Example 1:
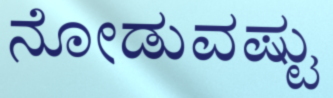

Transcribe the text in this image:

ನೋಡುವಷ್ಟು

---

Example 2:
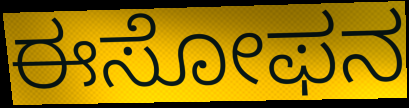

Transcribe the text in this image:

ಈಸೋಫನ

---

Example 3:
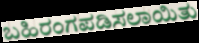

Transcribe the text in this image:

ಬಹಿರಂಗಪಡಿಸಲಾಯಿತು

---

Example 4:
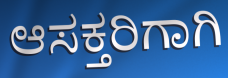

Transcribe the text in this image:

ಆಸಕ್ತರಿಗಾಗಿ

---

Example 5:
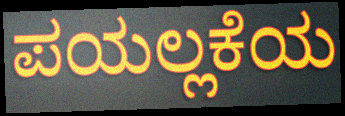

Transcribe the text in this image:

ಪಯಲ್ಲಕೆಯ